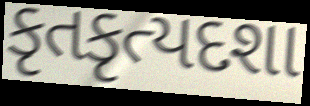
કૃતકૃત્યદશા